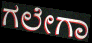
ಗಲೇಗಾ